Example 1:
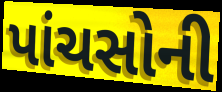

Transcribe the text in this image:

પાંચસોની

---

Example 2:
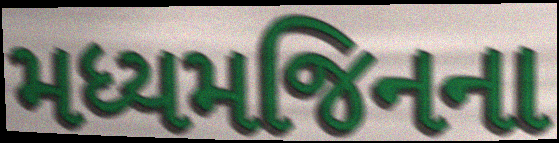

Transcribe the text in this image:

મધ્યમજિનના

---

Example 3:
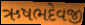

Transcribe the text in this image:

ઋષભદેવજી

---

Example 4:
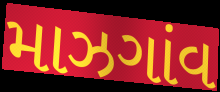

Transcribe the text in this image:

માઝગાંવ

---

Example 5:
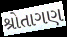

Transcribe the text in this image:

શ્રોતાગણ